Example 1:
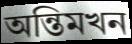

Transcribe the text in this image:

অন্তিমখন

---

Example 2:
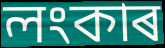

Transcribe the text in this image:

লংকাৰ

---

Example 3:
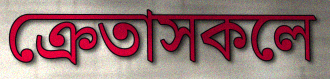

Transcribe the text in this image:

ক্ৰেতাসকলে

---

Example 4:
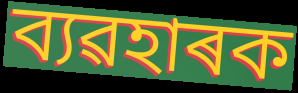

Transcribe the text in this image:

ব্যৱহাৰক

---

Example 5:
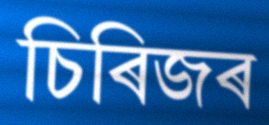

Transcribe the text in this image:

চিৰিজৰ